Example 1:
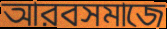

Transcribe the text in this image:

আরবসমাজে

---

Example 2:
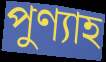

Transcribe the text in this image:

পুণ্যাহ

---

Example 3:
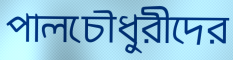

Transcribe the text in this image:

পালচৌধুরীদের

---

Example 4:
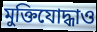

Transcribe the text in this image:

মুক্তিযোদ্ধাও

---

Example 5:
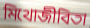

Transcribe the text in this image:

মিথোজীবিতা